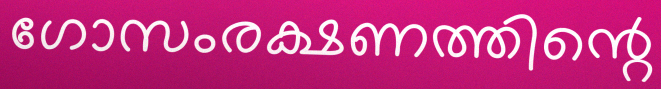
ഗോസംരക്ഷണത്തിന്റെ